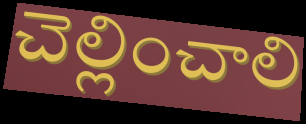
చెల్లించాలి